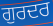
ਗੁਰਦਰ